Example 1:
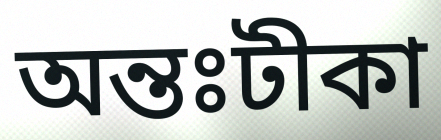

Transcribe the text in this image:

অন্তঃটীকা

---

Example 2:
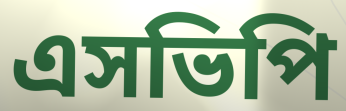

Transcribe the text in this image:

এসভিপি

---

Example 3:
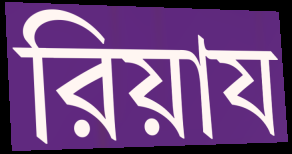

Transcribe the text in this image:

রিয়ায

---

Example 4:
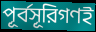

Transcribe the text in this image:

পূর্বসূরিগণই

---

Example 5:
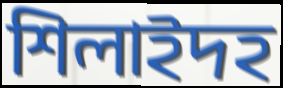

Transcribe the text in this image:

শিলাইদহ